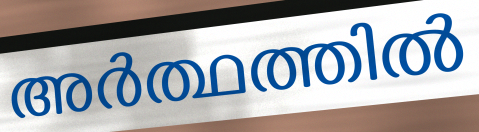
അർത്ഥത്തിൽ